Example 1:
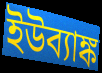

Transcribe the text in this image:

ইউব্যাঙ্ক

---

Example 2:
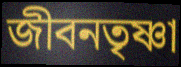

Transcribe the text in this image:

জীবনতৃষ্ণা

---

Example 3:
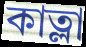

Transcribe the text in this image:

কাত্লা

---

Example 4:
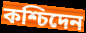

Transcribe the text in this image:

কশ্চিদেন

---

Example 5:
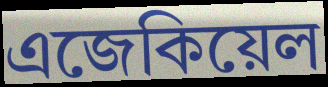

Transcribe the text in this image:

এজেকিয়েল